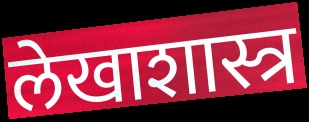
लेखाशास्त्र